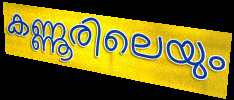
കണ്ണൂരിലെയും